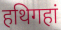
हथिगहां